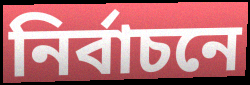
নিৰ্বাচনে